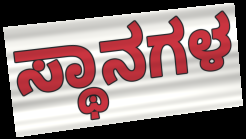
ಸ್ಥಾನಗಳ